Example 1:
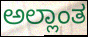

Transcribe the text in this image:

ಅಲ್ಲಾಂತ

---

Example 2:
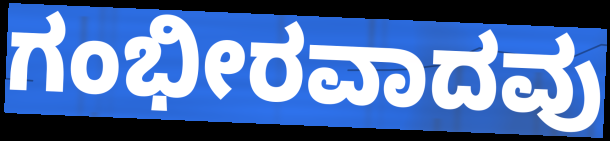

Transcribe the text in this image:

ಗಂಭೀರವಾದವು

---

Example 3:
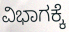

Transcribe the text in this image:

ವಿಭಾಗಕ್ಕೆ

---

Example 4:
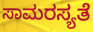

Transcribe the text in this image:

ಸಾಮರಸ್ಯತೆ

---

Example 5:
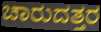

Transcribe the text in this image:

ಚಾರುದತ್ತರ